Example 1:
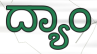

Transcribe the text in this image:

ದ್ಯಾಂ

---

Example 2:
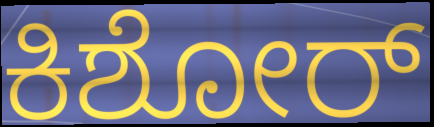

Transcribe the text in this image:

ಕಿಶೋರ್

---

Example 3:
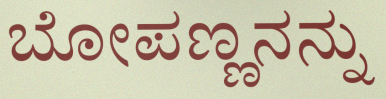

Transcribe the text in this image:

ಬೋಪಣ್ಣನನ್ನು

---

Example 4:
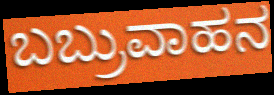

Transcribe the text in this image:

ಬಬ್ರುವಾಹನ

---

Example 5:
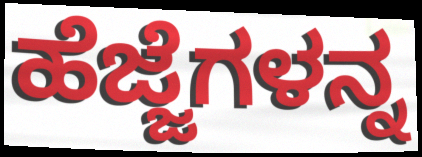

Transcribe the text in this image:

ಹೆಜ್ಜೆಗಳನ್ನ